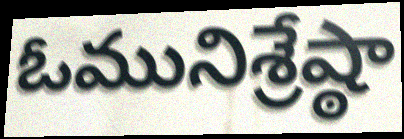
ఓమునిశ్రేష్ఠా